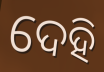
ଦେହି